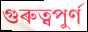
গুৰুত্বপুৰ্ণ